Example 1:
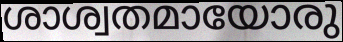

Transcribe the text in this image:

ശാശ്വതമായോരു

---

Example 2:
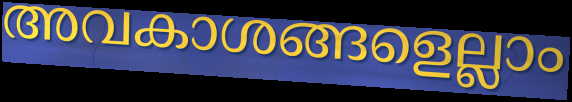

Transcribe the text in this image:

അവകാശങ്ങളെല്ലാം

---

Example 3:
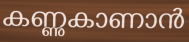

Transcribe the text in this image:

കണ്ണുകാണാൻ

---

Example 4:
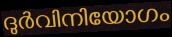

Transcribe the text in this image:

ദുർവിനിയോഗം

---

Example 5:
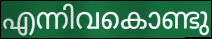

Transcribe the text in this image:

എന്നിവകൊണ്ടു